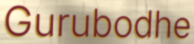
Gurubodhe